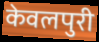
केवलपुरी